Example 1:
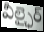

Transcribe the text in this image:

వీల్ఛైర్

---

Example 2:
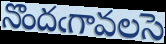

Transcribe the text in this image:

నొందఁగావలసె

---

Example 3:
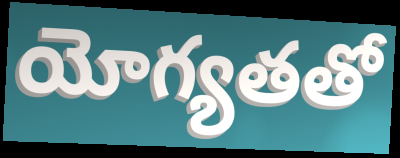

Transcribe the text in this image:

యోగ్యతతో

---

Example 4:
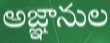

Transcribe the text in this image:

అజ్ఞానుల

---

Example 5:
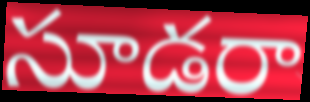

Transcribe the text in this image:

సూడరా